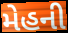
મેહની